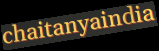
chaitanyaindia